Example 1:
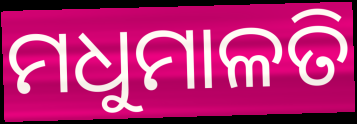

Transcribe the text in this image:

ମଧୁମାଳତି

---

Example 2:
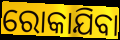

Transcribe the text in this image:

ରୋକାଯିବା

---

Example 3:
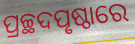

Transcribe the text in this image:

ପ୍ରଚ୍ଛଦପୃଷ୍ଠାରେ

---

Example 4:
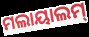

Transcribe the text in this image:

ମଲାୟାଲମ୍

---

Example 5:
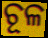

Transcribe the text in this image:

ଚୂଳ